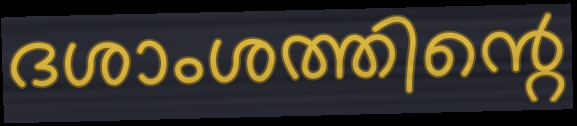
ദശാംശത്തിന്റെ